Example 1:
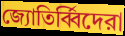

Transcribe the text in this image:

জ্যোতির্ব্বিদেরা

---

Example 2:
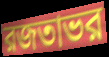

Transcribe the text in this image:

রজতাভর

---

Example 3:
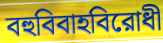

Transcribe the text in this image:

বহুবিবাহবিরোধী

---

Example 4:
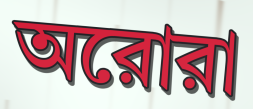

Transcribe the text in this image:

অরোরা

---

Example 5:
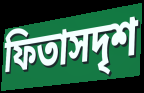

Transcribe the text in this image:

ফিতাসদৃশ